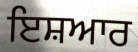
ਇਸ਼ਆਰ